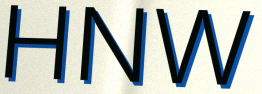
HNW